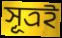
সূত্ৰই